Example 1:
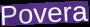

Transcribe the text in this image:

Povera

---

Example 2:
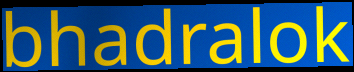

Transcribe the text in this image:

bhadralok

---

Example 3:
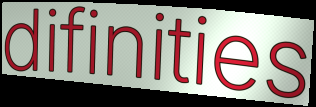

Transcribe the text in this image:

difinities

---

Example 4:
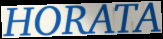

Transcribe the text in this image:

HORATA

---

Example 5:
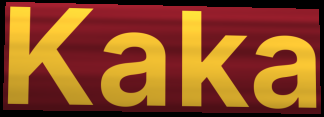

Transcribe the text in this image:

Kaka